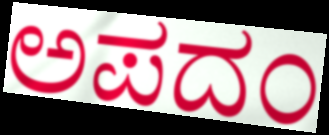
ಅಪದಂ